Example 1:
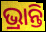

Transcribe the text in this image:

ଭ୍ରାନ୍ତି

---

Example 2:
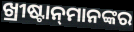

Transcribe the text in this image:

ଖ୍ରୀଷ୍ଟାନ୍‌ମାନଙ୍କର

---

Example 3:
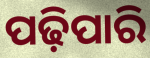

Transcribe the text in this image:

ପଢ଼ିପାରି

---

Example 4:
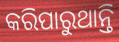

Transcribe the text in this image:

କରିପାରୁଥାନ୍ତି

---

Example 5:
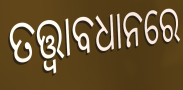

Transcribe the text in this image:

ତତ୍ତ୍ୱାବଧାନରେ